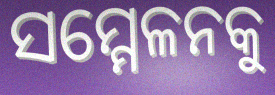
ସମ୍ମେଳନକୁ